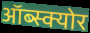
ऑब्स्क्योर